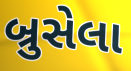
બ્રુસેલા